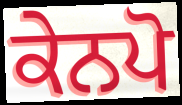
ਕੇਨਪੋ